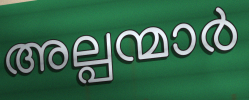
അല്പന്മാർ